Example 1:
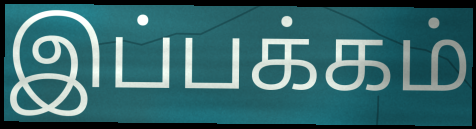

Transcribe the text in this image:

இப்பக்கம்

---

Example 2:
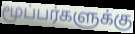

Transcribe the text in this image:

மூப்பர்களுக்கு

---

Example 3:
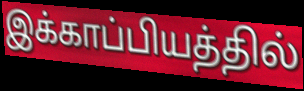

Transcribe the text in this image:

இக்காப்பியத்தில்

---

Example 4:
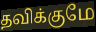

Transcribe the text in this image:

தவிக்குமே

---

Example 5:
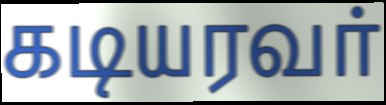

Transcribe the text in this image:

கடியரவர்